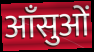
आँसुओं